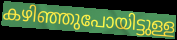
കഴിഞ്ഞുപോയിട്ടുള്ള